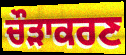
ਚੌੜਾਕਰਣ